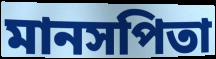
মানসপিতা